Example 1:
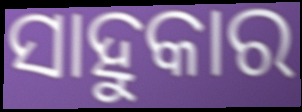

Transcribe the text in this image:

ସାହୁକାର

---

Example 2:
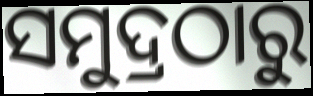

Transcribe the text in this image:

ସମୁଦ୍ରଠାରୁ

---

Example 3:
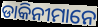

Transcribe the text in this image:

ଡାକିନୀମାନେ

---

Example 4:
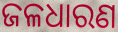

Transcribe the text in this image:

ଜଳଧାରଣ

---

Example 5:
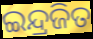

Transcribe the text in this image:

ଇନ୍ଦ୍ରଜିତ